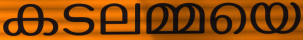
കടലമ്മയെ